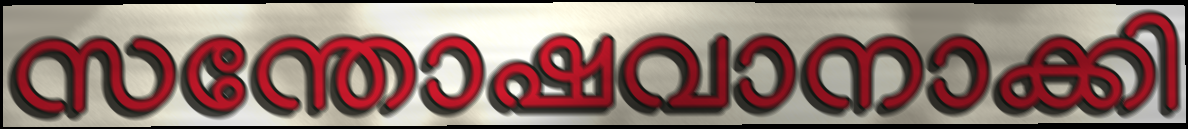
സന്തോഷവാനാക്കി